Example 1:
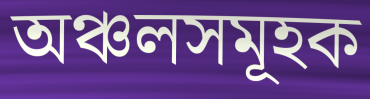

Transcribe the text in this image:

অঞ্চলসমূহক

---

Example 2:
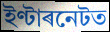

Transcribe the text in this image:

ইণ্টাৰনেটত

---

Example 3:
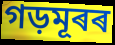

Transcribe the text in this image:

গড়মূৰৰ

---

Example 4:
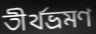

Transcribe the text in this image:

তীৰ্থভ্ৰমণ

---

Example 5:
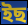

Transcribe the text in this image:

ইছ